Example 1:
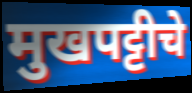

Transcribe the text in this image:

मुखपट्टीचे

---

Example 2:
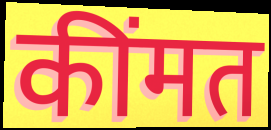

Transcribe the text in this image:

कींमत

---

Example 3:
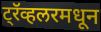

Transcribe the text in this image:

ट्रॅव्हलरमधून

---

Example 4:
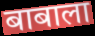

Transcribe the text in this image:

बाबाला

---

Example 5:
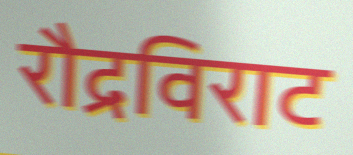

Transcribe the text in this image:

रौद्रविराट